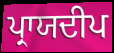
ਪ੍ਰਾਯਦੀਪ